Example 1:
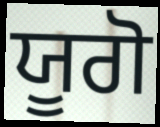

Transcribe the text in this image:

ਯੂਗੋ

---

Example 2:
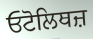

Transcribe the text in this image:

ਓਟੋਲਿਥਜ਼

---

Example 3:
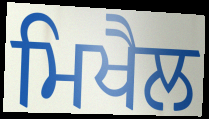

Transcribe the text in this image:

ਮਿਖੈਲ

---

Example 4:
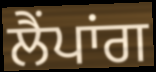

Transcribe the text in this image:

ਲੈਂਪਾਂਗ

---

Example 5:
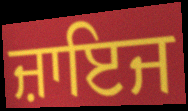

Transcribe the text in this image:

ਜ਼ਾਇਜ